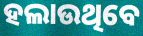
ହଲାଉଥିବେ